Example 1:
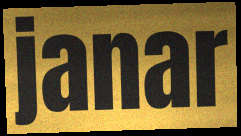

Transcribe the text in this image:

janar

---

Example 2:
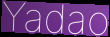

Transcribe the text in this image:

Yadao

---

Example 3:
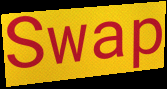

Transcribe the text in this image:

Swap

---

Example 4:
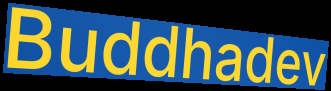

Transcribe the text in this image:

Buddhadev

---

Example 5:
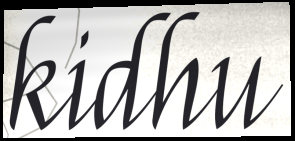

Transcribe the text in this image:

kidhu